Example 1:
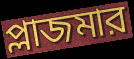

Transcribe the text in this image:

প্লাজমার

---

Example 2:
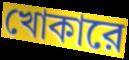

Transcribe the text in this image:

খোকারে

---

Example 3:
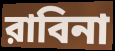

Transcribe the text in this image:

রাবিনা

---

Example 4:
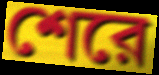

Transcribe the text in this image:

শেরে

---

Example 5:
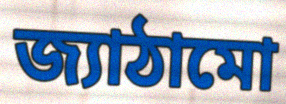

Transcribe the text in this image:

জ্যাঠামো